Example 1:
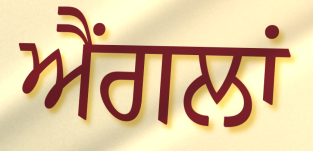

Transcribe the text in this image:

ਐਂਗਲਾਂ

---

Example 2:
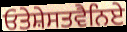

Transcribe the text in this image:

ਓਤੇਸ਼ੇਸਤਵੈਨਿਏ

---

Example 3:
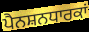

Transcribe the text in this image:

ਪੈਨਸ਼ਨਧਾਰਕਾਂ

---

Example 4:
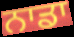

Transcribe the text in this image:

ਨਾਡਾ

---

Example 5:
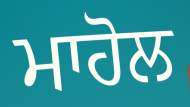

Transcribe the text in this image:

ਮਾਹੋਲ